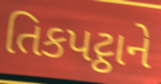
તિકપટ્ઠાને